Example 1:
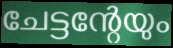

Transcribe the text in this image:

ചേട്ടന്റേയും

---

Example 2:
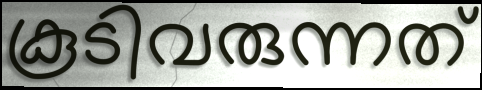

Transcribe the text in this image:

കൂടിവരുന്നത്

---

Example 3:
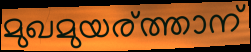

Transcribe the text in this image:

മുഖമുയര്ത്താന്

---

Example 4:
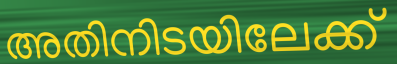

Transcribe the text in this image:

അതിനിടയിലേക്ക്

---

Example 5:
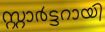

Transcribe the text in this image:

സ്റ്റാർട്ടറായി